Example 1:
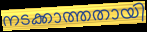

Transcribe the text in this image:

നടക്കാത്തതായി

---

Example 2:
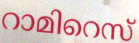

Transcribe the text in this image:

റാമിറെസ്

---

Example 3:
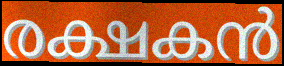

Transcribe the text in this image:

രക്ഷകൻ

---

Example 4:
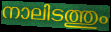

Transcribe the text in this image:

നാലിടത്തും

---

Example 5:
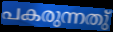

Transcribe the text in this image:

പകരുന്നതു്